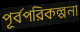
পূর্বপরিকল্পনা